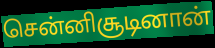
சென்னிசூடினான்